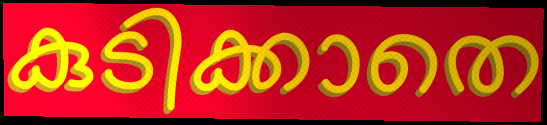
കുടിക്കാതെ